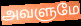
அவளுமே